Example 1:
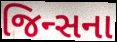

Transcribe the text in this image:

જિન્સના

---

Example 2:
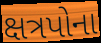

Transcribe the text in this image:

ક્ષત્રપોના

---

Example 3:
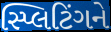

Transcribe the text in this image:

સ્પ્લિટિંગને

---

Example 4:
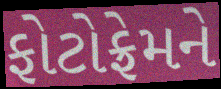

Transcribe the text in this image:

ફોટોફ્રેમને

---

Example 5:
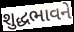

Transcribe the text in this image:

શુદ્ધભાવને